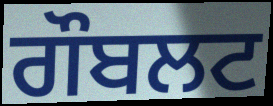
ਗੌਬਲਟ